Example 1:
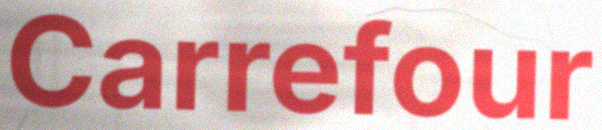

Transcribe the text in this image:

Carrefour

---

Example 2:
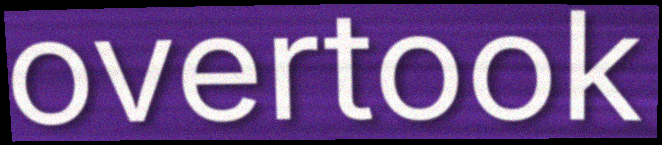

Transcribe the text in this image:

overtook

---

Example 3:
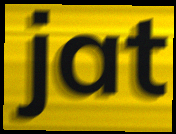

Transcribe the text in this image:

jat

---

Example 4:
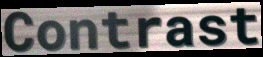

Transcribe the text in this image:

Contrast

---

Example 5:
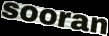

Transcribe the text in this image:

sooran